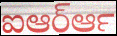
ఐఆర్ఆర్‍